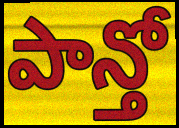
పాన్తో